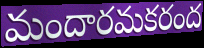
మందారమకరంద